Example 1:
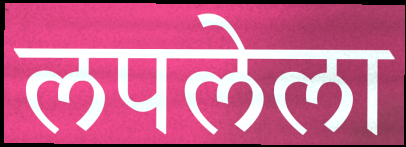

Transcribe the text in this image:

लपलेला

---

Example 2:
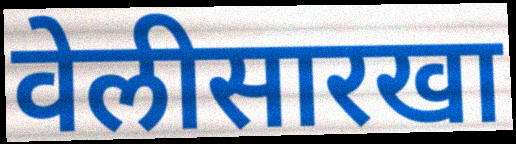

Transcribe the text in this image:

वेलीसारखा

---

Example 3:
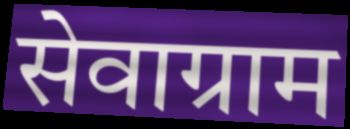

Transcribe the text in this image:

सेवाग्राम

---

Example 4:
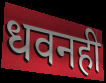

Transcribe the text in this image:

धवनही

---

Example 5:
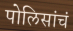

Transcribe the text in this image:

पोलिसांचं